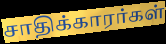
சாதிக்காரர்கள்